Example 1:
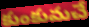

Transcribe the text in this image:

కుంకుమచే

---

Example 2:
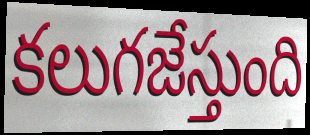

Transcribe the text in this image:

కలుగజేస్తుంది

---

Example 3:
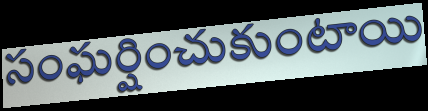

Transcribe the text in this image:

సంఘర్షించుకుంటాయి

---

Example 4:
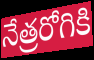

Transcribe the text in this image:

నేత్రరోగికి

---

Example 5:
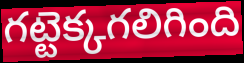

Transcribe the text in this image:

గట్టెక్కగలిగింది